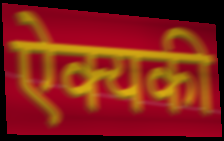
ऐक्यकी